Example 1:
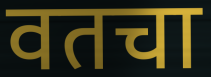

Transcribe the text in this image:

वतचा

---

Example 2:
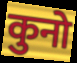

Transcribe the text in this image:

कुनो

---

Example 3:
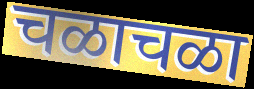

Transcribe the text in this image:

चळाचळा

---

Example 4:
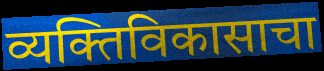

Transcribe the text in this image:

व्यक्तिविकासाचा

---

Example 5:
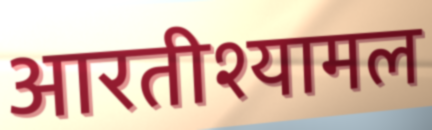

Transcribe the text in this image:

आरतीश्यामल